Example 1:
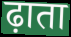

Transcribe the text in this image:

ढ़ाता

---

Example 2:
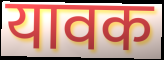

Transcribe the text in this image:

यावक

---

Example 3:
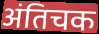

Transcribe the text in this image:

अंतिचक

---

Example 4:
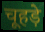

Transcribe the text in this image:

चूहड़े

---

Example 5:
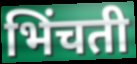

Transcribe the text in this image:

भिंचती